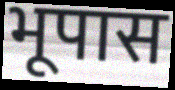
भूपास